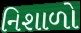
નિશાળો